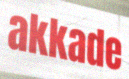
akkade